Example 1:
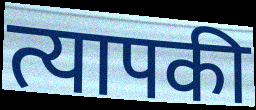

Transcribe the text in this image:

त्यापकी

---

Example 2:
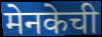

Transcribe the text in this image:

मेनकेची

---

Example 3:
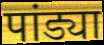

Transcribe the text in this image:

पांड्या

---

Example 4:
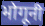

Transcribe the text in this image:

भोगूनी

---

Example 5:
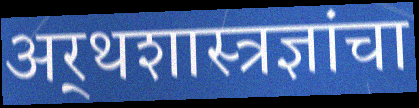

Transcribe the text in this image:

अर्थशास्त्रज्ञांचा